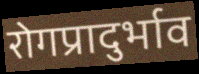
रोगप्रादुर्भाव